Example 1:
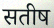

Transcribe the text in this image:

सतीष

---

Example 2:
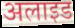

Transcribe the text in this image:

अलाइड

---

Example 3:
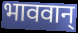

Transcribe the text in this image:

भाववान्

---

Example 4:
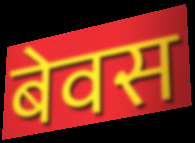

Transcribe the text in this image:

बेवस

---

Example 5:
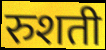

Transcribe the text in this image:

रुशती